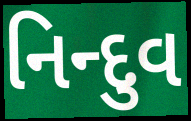
નિન્દુવ